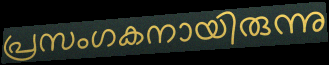
പ്രസംഗകനായിരുന്നു